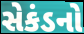
સેકંડનો